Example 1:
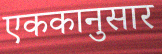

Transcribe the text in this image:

एककानुसार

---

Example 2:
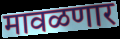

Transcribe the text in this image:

मावळणार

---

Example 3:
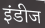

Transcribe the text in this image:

इंडीज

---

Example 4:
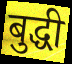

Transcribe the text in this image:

बुद्धी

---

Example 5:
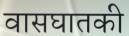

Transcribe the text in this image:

वासघातकी